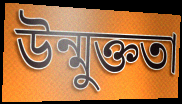
উন্মুক্ততা